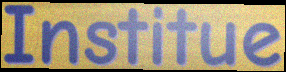
Institue